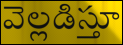
వెల్లడిస్తూ